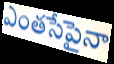
ఎంతసేపైనా